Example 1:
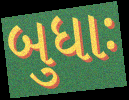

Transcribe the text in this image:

બુધાઃ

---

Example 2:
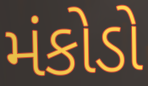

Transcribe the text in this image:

મંકોડો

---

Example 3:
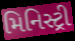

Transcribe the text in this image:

મિનિસ્ટ્રી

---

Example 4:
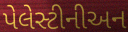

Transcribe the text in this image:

પેલેસ્ટીનીઅન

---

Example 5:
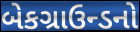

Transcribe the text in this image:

બેકગ્રાઉન્ડનો